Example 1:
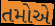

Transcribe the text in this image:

તમોએ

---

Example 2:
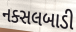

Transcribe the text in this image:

નક્સલબાડી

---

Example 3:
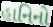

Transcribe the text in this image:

હાનિનો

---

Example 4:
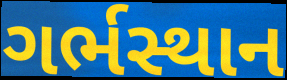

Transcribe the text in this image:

ગર્ભસ્થાન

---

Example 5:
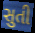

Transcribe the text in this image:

સુતી